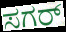
ಸಗರ್